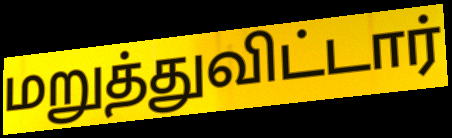
மறுத்துவிட்டார்